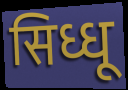
सिध्धू